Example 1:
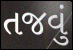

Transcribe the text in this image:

તજવું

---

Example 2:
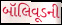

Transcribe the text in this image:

બૉલિવૂડની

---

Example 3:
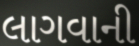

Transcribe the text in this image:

લાગવાની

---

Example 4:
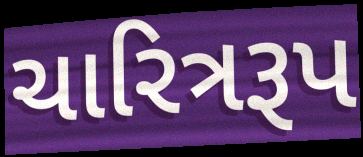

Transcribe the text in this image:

ચારિત્રરૂપ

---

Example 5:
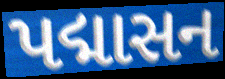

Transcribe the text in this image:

પદ્માસન